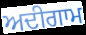
ਅਦੀਗਾਮ